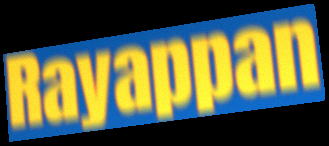
Rayappan